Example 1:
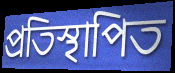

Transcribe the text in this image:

প্রতিস্থাপিত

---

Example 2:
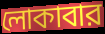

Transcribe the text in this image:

লোকাবার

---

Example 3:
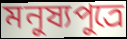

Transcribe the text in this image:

মনুষ্যপুত্রে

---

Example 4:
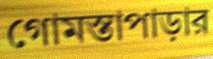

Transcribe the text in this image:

গোমস্তাপাড়ার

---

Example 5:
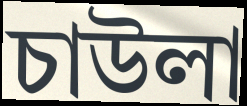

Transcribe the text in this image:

চাউলা